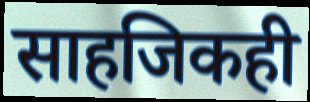
साहजिकही